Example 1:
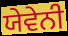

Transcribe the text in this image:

ਯੇਵੇਨੀ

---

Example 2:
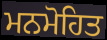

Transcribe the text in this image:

ਮਨਮੋਹਿਤ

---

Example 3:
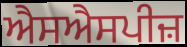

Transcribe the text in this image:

ਐਸਐਸਪੀਜ਼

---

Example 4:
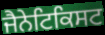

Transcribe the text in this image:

ਜੈਨੇਟਿਕਿਸਟ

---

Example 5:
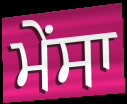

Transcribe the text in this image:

ਮੇਂਸਾ